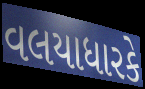
વલયાધારકે